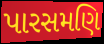
પારસમણિ